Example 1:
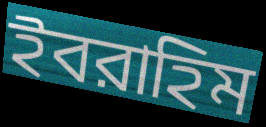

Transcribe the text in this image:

ইবরাহিম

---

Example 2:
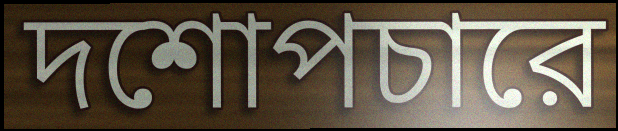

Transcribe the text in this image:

দশোপচারে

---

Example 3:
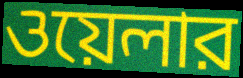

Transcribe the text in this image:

ওয়েলার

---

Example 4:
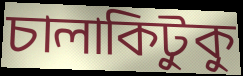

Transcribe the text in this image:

চালাকিটুকু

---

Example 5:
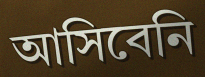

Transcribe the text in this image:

আসিবেনি